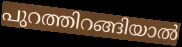
പുറത്തിറങ്ങിയാൽ